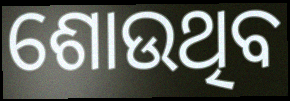
ଶୋଉଥିବ